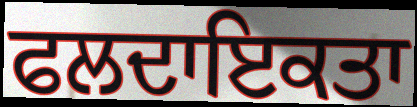
ਫਲਦਾਇਕਤਾ